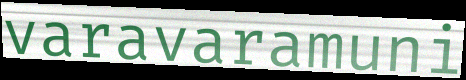
varavaramuni